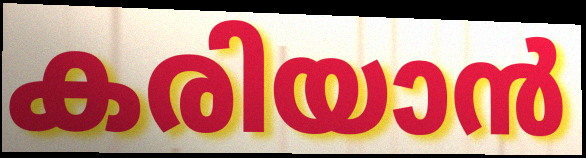
കരിയാൻ